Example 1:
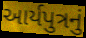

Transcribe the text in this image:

આર્યપુત્રનું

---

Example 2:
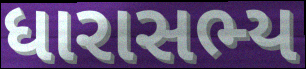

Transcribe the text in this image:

ધારાસભ્ય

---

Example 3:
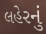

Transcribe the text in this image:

લહેરનું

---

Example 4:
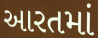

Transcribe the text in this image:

આરતમાં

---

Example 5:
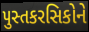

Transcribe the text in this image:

પુસ્તકરસિકોને